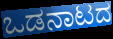
ಒಡನಾಟದ